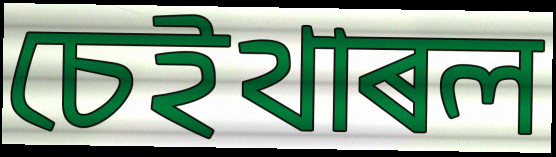
চেইথাৰল